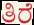
ತಿರೆ